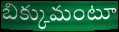
బిక్కుమంటూ